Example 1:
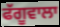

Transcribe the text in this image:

ਫੱਗੂਵਾਲਾ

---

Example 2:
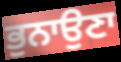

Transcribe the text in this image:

ਭੁਨਾਉਣਾ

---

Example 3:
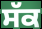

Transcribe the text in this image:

ਸੱਕ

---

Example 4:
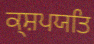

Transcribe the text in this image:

ਕ੍ਸ਼ਪਯਤਿ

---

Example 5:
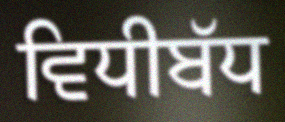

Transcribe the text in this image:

ਵਿਧੀਬੱਧ